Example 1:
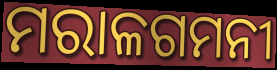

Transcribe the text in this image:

ମରାଳଗମନୀ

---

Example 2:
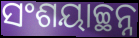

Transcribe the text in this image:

ସଂଶୟାଚ୍ଛନ୍ନ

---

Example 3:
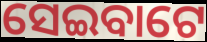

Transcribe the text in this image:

ସେଇବାଟେ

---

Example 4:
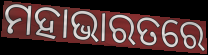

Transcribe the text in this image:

ମହାଭାରତରେ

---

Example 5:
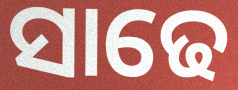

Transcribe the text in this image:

ସାଢେ